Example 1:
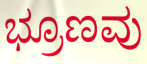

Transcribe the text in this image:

ಭ್ರೂಣವು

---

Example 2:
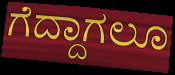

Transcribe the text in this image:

ಗೆದ್ದಾಗಲೂ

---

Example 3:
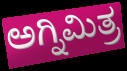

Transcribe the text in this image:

ಅಗ್ನಿಮಿತ್ರ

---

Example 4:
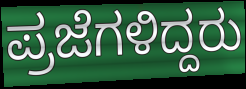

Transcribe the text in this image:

ಪ್ರಜೆಗಳಿದ್ದರು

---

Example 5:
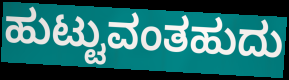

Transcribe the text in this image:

ಹುಟ್ಟುವಂತಹುದು